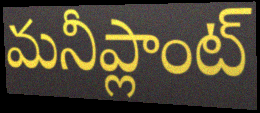
మనీప్లాంట్